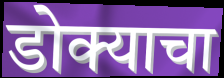
डोक्याचा